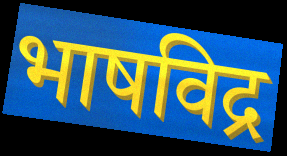
भाषविद्र